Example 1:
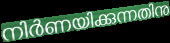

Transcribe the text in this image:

നിർണയിക്കുന്നതിനു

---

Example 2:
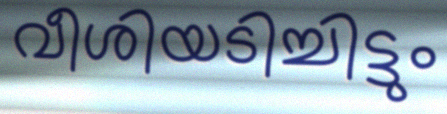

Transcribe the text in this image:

വീശിയടിച്ചിട്ടും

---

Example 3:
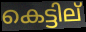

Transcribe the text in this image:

കെട്ടില്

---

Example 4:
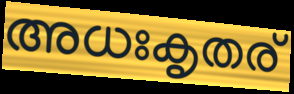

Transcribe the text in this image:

അധഃകൃതര്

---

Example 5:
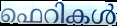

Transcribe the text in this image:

ഫെറികൾ